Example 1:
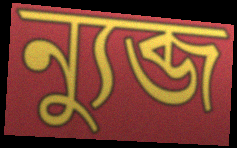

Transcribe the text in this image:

ন্যুব্জ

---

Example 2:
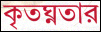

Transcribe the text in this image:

কৃতঘ্নতার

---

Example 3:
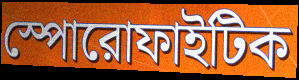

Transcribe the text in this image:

স্পোরোফাইটিক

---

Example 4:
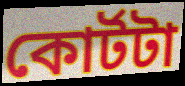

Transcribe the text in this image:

কোর্টটা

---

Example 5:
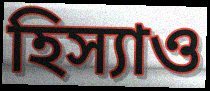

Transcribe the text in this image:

হিস্যাও